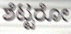
ಶೆಟ್ಟರೋ